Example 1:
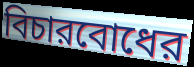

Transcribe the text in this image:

বিচারবোধের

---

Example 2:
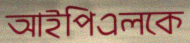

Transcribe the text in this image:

আইপিএলকে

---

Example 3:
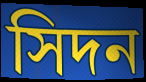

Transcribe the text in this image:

সিদন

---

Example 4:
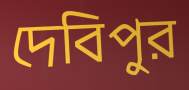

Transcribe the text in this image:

দেবিপুর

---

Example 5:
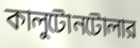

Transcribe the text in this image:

কালুটোনটোলার